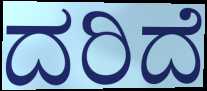
ದರಿದೆ